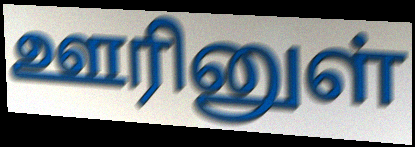
ஊரினுள்